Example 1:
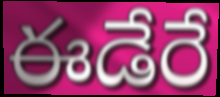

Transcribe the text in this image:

ఈడేరే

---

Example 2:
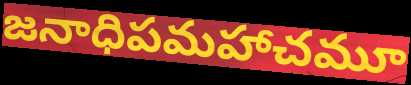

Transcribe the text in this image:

జనాధిపమహాచమూ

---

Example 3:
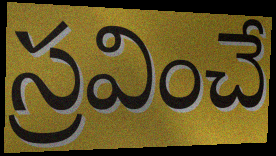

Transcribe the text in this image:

స్రవించే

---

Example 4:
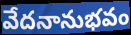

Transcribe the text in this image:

వేదనానుభవం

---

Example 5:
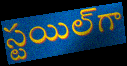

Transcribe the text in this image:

స్టయిల్‌గా